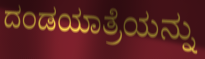
ದಂಡಯಾತ್ರೆಯನ್ನು